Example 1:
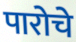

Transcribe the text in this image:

पारोचे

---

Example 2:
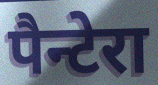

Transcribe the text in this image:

पैन्टेरा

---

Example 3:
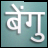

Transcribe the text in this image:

बेंगु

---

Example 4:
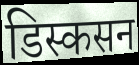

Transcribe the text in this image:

डिस्कसन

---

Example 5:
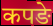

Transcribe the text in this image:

कपङे